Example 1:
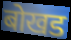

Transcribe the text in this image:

बोखड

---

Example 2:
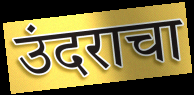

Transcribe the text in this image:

उंदराचा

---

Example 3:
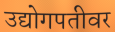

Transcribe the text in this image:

उद्योगपतीवर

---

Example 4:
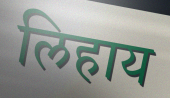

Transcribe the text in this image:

लिहाय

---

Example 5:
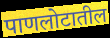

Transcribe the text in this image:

पाणलोटातील